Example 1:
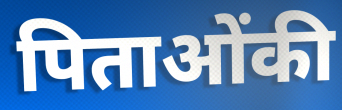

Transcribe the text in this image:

पिताओंकी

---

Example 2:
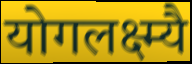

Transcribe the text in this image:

योगलक्ष्म्यै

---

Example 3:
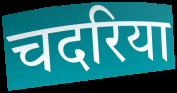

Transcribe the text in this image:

चदरिया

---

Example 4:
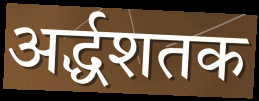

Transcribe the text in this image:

अर्द्धशतक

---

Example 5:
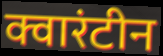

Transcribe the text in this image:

क्वारंटीन